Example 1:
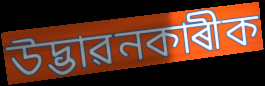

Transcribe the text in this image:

উদ্ভাৱনকাৰীক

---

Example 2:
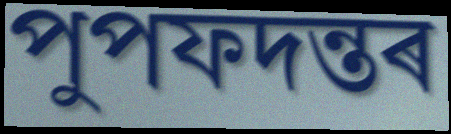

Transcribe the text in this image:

পুপফদন্তৰ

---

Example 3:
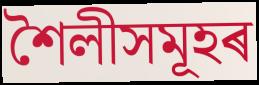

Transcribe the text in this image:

শৈলীসমূহৰ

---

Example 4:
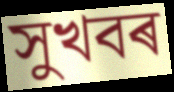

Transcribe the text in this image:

সুখবৰ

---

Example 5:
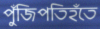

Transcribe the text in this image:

পুঁজিপতিহঁতে